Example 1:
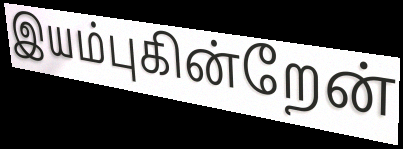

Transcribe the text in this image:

இயம்புகின்றேன்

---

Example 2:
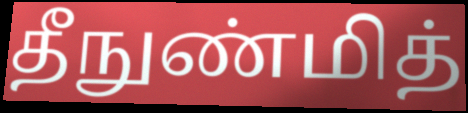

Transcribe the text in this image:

தீநுண்மித்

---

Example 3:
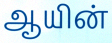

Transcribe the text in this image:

ஆயின்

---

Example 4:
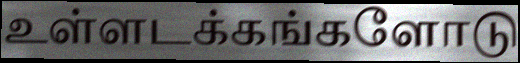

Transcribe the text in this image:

உள்ளடக்கங்களோடு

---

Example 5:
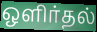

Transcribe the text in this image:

ஒளிர்தல்